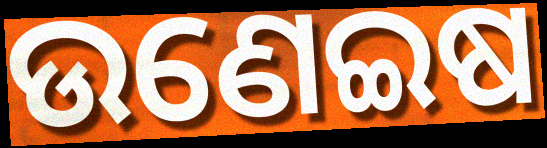
ଉଣେଇଷ